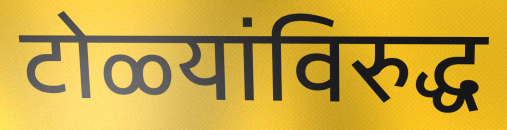
टोळ्यांविरुद्ध